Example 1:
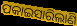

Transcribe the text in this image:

ପକାଇସାରିଲାଣି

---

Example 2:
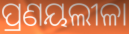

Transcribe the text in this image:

ପ୍ରଣୟଲୀଳା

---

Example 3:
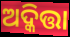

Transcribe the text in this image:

ଅଦ୍କିତ୍ତା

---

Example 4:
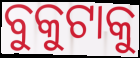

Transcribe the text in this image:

ବୁକୁଟାକୁ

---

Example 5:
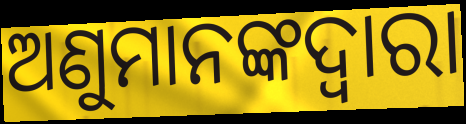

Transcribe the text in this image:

ଅଣୁମାନଙ୍କଦ୍ଵାରା